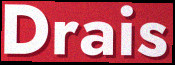
Drais